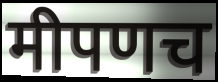
मीपणच